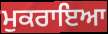
ਮੁਕਰਾਇਆ